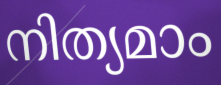
നിത്യമാം